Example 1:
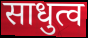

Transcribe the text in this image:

साधुत्व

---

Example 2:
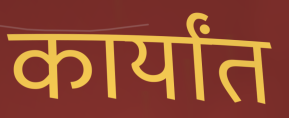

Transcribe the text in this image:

कार्यांत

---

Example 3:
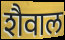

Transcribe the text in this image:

शैवाल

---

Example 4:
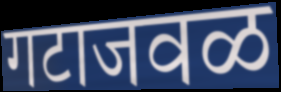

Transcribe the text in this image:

गटाजवळ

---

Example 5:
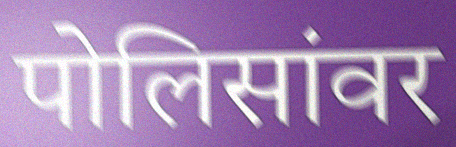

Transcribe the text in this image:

पोलिसांवर